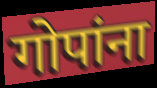
गोपांना